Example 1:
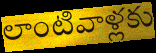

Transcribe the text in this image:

లాంటివాళ్లకు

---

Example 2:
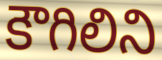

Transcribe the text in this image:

కౌగిలిని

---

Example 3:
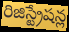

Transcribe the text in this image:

రిజిస్ట్రేషన్ల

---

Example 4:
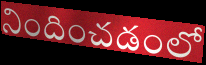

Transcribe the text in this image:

నిందించడంలో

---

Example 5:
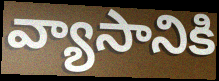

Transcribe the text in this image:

వ్యాసానికి